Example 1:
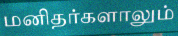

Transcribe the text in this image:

மனிதர்களாலும்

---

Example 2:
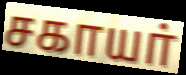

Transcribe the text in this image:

சகாயர்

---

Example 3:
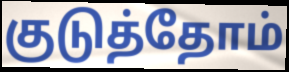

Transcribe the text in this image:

குடுத்தோம்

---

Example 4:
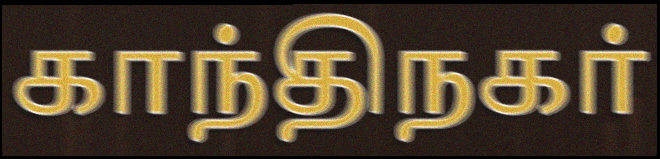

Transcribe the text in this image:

காந்திநகர்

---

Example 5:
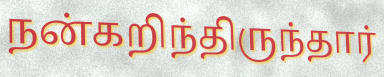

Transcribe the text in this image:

நன்கறிந்திருந்தார்